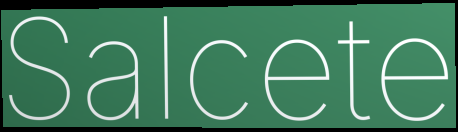
Salcete